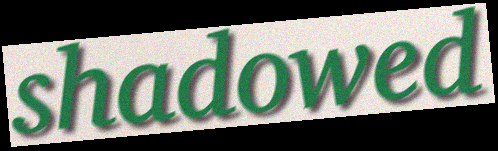
shadowed